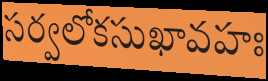
సర్వలోకసుఖావహః